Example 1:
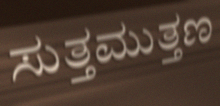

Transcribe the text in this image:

ಸುತ್ತಮುತ್ತಣ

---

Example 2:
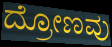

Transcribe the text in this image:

ದ್ರೋಣವು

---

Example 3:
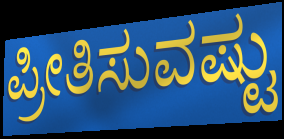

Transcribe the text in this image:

ಪ್ರೀತಿಸುವಷ್ಟು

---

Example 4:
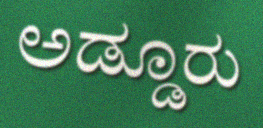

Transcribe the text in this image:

ಅಡ್ಡೂರು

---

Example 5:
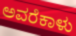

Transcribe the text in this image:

ಅವರೆಕಾಳು